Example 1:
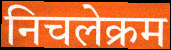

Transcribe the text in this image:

निचलेक्रम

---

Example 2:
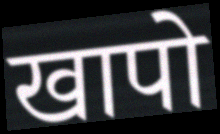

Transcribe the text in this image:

खापो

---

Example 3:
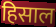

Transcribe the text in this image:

हिसाल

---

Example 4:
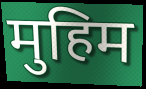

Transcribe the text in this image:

मुहिम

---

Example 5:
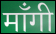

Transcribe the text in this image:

माँगी